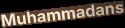
Muhammadans